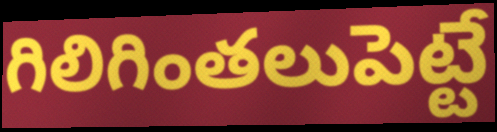
గిలిగింతలుపెట్టే